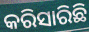
କରିସାରିଛି